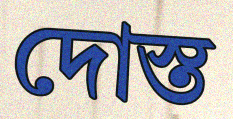
দোস্ত